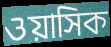
ওয়াসিক